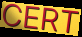
CERT